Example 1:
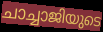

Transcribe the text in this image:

ചാച്ചാജിയുടെ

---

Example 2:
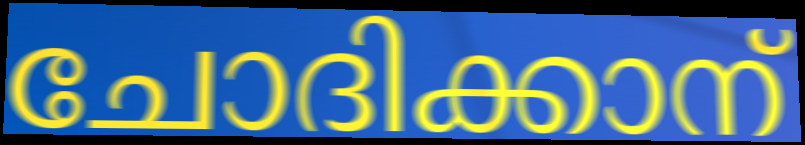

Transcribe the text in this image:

ചോദിക്കാന്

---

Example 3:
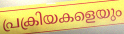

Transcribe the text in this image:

പ്രക്രിയകളെയും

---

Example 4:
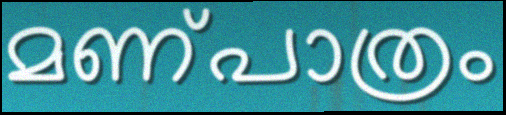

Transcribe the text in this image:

മണ്പാത്രം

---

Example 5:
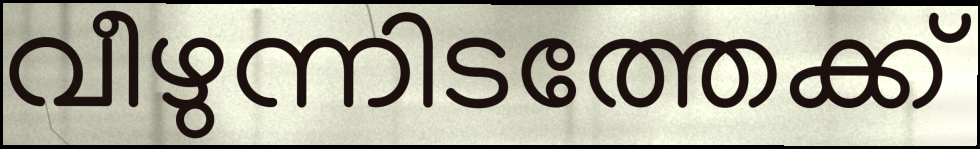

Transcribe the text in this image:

വീഴുന്നിടത്തേക്ക്